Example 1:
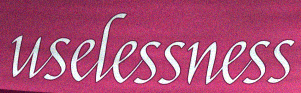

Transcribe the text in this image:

uselessness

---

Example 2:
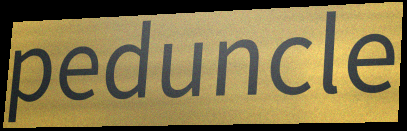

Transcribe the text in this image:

peduncle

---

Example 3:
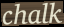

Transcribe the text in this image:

chalk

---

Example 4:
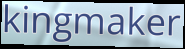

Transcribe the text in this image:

kingmaker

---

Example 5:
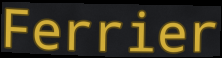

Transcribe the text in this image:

Ferrier